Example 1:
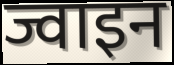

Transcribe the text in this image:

ज्‍वाइन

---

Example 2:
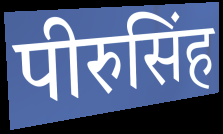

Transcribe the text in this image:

पीरुसिंह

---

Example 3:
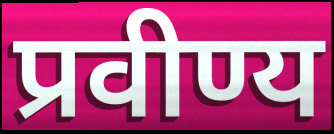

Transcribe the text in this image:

प्रवीण्य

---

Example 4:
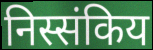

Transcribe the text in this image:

निस्संकिय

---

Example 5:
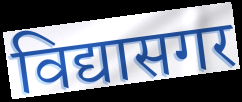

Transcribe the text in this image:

विद्यासगर